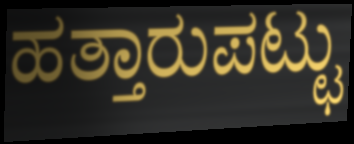
ಹತ್ತಾರುಪಟ್ಟು